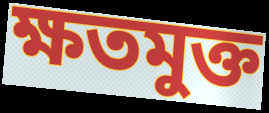
ক্ষতমুক্ত